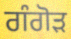
ਗੰਗੋੜ